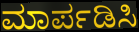
ಮಾರ್ಪಡಿಸಿ